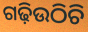
ଗଢ଼ିଉଠିଚି